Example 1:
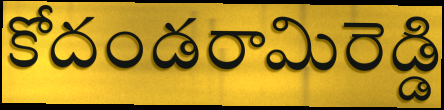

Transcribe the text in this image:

కోదండరామిరెడ్డి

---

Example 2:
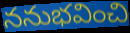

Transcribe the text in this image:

ననుభవించి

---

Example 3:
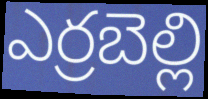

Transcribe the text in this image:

ఎర్రబెల్లి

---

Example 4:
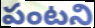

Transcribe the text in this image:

పంటని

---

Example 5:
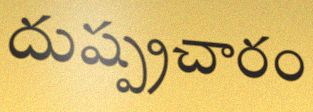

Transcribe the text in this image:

దుష్ప్రచారం